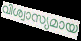
വിശ്വാസ്യമായ